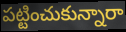
పట్టించుకున్నారా